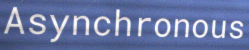
Asynchronous